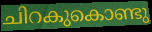
ചിറകുകൊണ്ടു